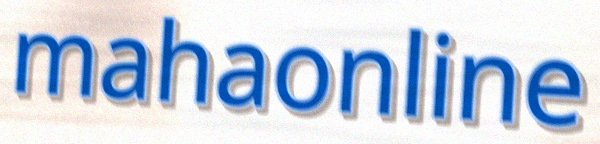
mahaonline